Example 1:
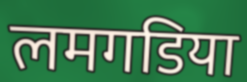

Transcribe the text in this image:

लमगडिया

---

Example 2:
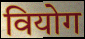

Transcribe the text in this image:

वियोग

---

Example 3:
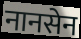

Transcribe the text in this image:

नानसेन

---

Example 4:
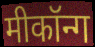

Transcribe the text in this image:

मीकॉन्ग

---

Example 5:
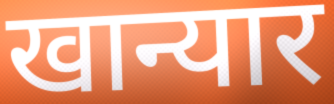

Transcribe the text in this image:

खान्यार